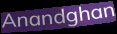
Anandghan